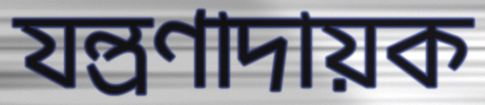
যন্ত্ৰণাদায়ক